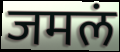
जमलं